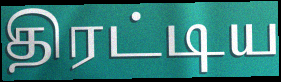
திரட்டிய